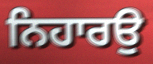
ਨਿਹਾਰਉ